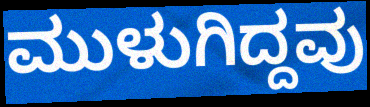
ಮುಳುಗಿದ್ದವು